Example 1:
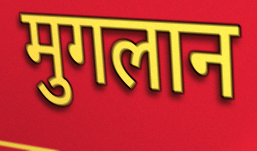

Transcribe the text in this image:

मुगलान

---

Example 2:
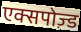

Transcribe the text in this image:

एक्सपोज़्ड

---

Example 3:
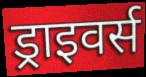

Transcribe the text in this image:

ड्राइवर्स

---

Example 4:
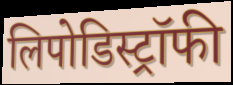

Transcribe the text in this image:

लिपोडिस्ट्रॉफी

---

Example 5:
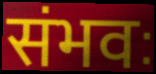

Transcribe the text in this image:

संभवः